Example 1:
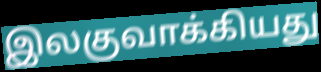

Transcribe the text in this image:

இலகுவாக்கியது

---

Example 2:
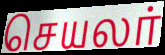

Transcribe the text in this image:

செயலர்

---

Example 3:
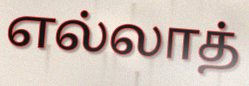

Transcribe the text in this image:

எல்லாத்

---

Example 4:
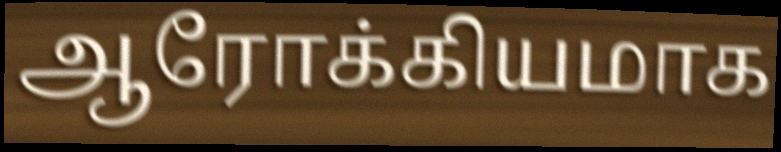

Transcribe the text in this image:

ஆரோக்கியமாக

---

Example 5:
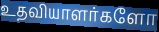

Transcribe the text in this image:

உதவியாளர்களோ